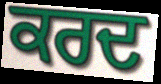
ਕਰਦ